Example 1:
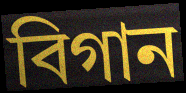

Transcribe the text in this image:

বিগান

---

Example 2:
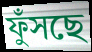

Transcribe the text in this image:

ফুঁসছে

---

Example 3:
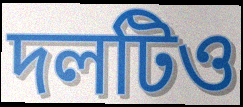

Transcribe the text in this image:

দলটিও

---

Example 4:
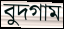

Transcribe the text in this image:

বুদগাম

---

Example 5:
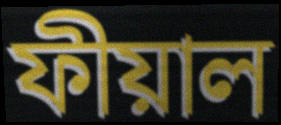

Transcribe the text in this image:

ফীয়াল